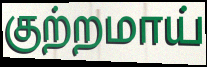
குற்றமாய்